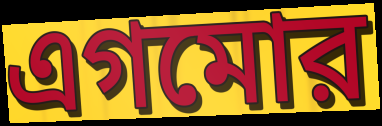
এগমোর